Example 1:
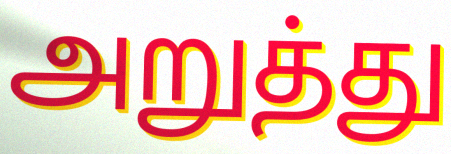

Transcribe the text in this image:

அறுத்து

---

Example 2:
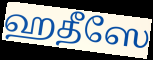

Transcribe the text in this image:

ஹதீஸே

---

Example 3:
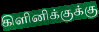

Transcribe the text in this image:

கிளினிக்குக்கு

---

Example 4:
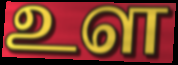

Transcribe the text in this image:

உள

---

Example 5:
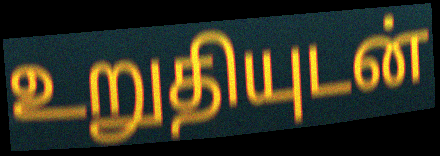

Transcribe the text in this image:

உறுதியுடன்